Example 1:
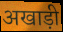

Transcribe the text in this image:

अखाड़ी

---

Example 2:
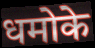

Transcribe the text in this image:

धमोके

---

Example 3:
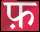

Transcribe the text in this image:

फ़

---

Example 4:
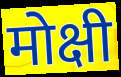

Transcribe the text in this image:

मोक्षी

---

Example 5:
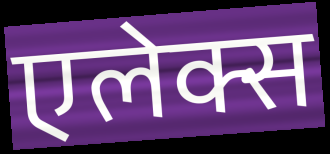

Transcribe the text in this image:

एलेक्स